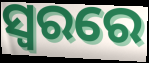
ସ୍ୱରରେ